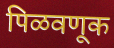
पिळवणूक